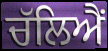
ਚੱਲਿਐਂ